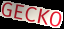
GECKO